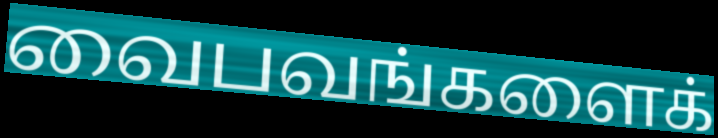
வைபவங்களைக்